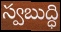
స్వబుద్ధి